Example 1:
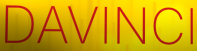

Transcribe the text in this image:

DAVINCI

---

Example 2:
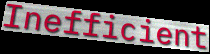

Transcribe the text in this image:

Inefficient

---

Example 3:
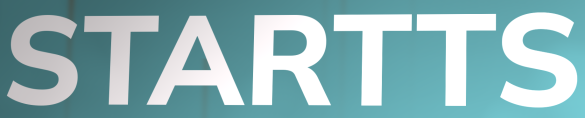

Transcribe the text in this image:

STARTTS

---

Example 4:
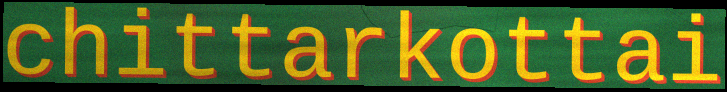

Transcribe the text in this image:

chittarkottai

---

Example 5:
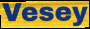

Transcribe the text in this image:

Vesey